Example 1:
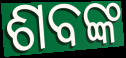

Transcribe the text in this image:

ଶବଙ୍କ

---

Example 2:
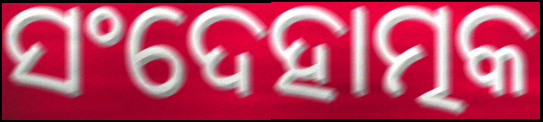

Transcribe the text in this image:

ସଂଦେହାତ୍ମକ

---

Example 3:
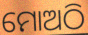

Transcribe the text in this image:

ମୋଅଠି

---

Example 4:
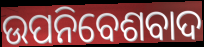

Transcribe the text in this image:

ଉପନିବେଶବାଦ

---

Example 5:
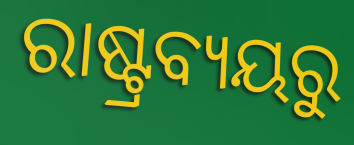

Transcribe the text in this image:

ରାଷ୍ଟ୍ରବ୍ୟୟରୁ